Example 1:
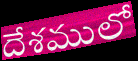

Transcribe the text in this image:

దేశములో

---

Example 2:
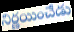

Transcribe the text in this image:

నిర్ణయించేడు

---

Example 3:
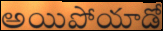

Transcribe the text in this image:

అయిపోయాడో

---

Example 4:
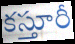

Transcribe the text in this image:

కస్తూరీ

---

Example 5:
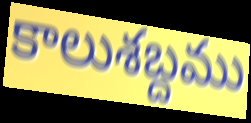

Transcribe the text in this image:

కాలుశబ్దము